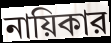
নায়িকার